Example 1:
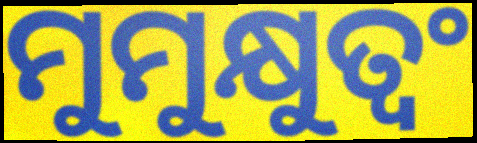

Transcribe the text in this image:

ମୁମୁକ୍ଷୁତ୍ୱଂ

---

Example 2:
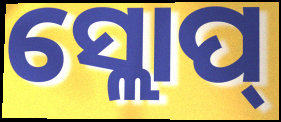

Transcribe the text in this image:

ସ୍ଲୋପ୍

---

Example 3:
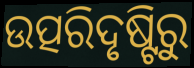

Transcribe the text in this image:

ଉତ୍ପରିଦୃଷ୍ଟିରୁ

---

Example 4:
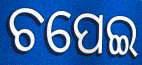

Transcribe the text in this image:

ଚପେଇ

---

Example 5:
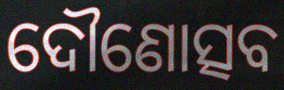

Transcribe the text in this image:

ଦୌଣୋତ୍ସବ